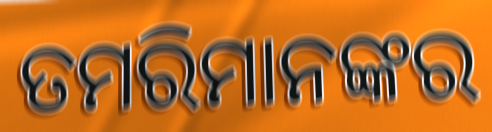
ତମରିମାନଙ୍କର